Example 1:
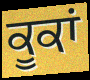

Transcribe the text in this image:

ਕੂਕਾਂ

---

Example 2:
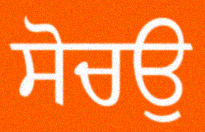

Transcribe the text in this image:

ਸੋਚਉ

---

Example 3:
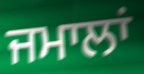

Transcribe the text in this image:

ਜਮਾਲਾਂ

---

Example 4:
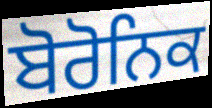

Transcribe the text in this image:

ਬੋਰੋਨਿਕ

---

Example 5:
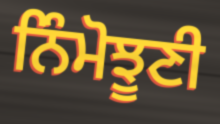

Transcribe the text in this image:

ਨਿੰਮੋਝੂਣੀ